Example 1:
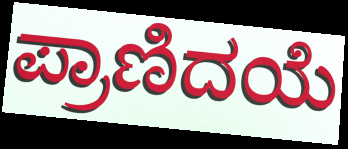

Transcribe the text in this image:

ಪ್ರಾಣಿದಯೆ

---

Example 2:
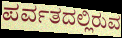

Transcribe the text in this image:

ಪರ್ವತದಲ್ಲಿರುವ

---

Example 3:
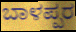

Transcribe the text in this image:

ಬಾಳಪ್ಪರ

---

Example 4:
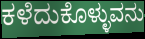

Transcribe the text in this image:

ಕಳೆದುಕೊಳ್ಳುವನು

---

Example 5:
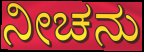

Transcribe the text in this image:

ನೀಚನು